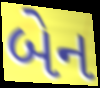
બેન